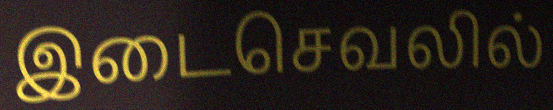
இடைசெவலில்